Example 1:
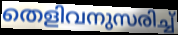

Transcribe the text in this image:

തെളിവനുസരിച്ച്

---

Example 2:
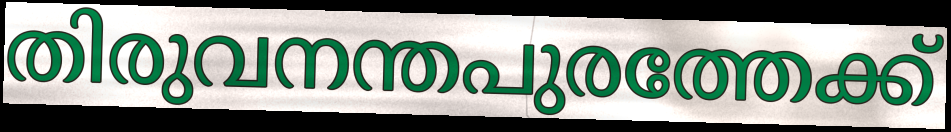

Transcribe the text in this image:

തിരുവനന്തപുരത്തേക്ക്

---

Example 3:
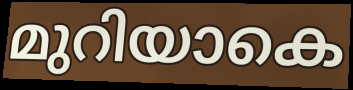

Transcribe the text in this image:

മുറിയാകെ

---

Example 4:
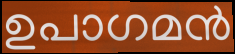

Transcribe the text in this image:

ഉപാഗമൻ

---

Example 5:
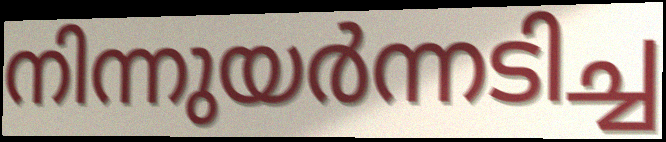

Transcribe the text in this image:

നിന്നുയർന്നടിച്ച